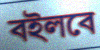
বইলবে